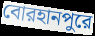
বোরহানপুরে